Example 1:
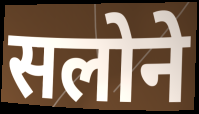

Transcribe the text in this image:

सलोने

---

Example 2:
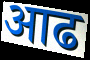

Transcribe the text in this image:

आढ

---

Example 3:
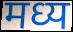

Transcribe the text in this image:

मध्‍य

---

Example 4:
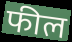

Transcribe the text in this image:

फील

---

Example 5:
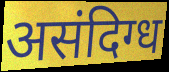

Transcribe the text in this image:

असंदिग्ध